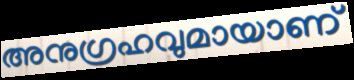
അനുഗ്രഹവുമായാണ്